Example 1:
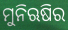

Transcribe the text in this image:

ମୁନିଋଷିର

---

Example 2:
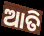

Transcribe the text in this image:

ଆତି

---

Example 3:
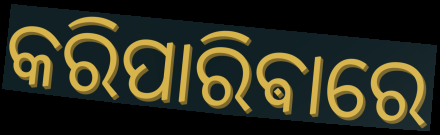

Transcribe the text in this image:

କରିପାରିଵାରେ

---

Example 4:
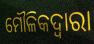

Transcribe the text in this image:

ମୌଳିକଦ୍ଵାରା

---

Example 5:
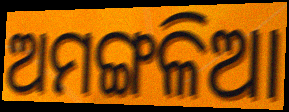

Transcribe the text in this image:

ଅମଙ୍ଗଳିଆ